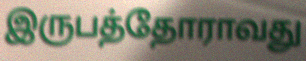
இருபத்தோராவது